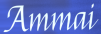
Ammai